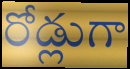
రోడ్లుగా